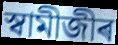
স্বামীজীৰ